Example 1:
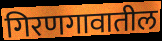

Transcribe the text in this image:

गिरणगावातील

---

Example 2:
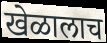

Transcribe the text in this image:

खेळालाच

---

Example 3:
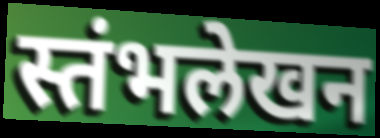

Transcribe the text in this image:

स्तंभलेखन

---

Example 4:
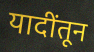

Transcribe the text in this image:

यादींतून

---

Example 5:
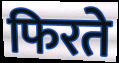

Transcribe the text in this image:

फिरते